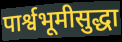
पार्श्वभूमीसुद्धा